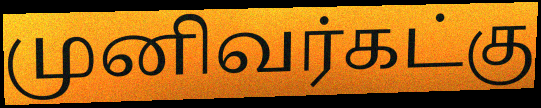
முனிவர்கட்கு